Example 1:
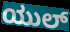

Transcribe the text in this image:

ಯುಲ್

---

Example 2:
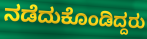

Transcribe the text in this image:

ನಡೆದುಕೊಂಡಿದ್ದರು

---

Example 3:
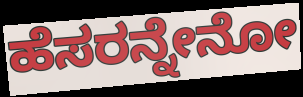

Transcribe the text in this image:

ಹೆಸರನ್ನೇನೋ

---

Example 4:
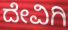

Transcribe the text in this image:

ದೇವಿಗಿ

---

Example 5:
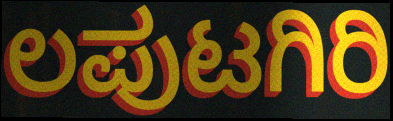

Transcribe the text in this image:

ಲಪುಟಗಿರಿ